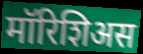
मॉरिशिअस